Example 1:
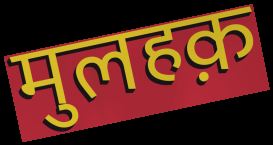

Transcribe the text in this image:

मुलहक़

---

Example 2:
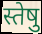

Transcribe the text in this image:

स्तेषु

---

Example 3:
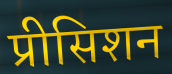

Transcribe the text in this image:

प्रीसिशन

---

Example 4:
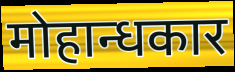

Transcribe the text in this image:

मोहान्धकार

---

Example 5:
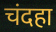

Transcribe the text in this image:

चंदहा